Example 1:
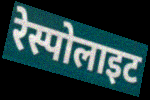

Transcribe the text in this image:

रेस्पोलाइट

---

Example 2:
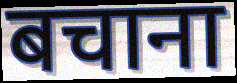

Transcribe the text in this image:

बचाना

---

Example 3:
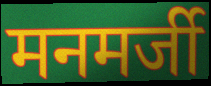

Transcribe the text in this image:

मनमर्जी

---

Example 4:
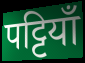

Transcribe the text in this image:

पट्टियाँ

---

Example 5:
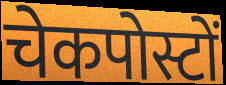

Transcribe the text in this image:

चेकपोस्टों